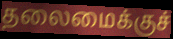
தலைமைக்குச்